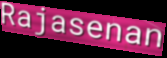
Rajasenan